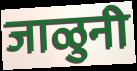
जाळुनी